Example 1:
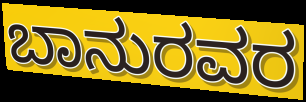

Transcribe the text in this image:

ಬಾನುರವರ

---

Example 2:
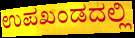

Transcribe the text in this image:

ಉಪಖಂಡದಲ್ಲಿ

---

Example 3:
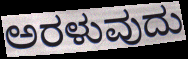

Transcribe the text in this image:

ಅರಳುವುದು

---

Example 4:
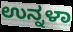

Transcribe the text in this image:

ಉನ್ನಳಾ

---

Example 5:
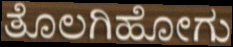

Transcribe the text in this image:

ತೊಲಗಿಹೋಗು